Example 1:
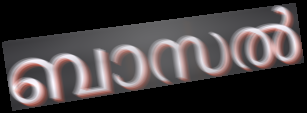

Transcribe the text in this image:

ബാസൽ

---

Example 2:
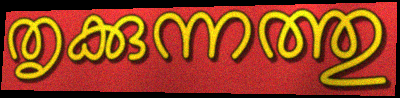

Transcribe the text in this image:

തൃക്കുന്നത്തു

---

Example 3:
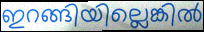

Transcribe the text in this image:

ഇറങ്ങിയില്ലെങ്കിൽ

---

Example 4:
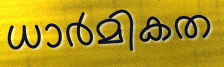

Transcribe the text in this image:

ധാർമികത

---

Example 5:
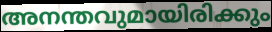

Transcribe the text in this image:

അനന്തവുമായിരിക്കും